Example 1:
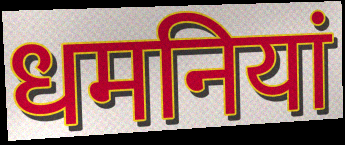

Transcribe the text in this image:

धमनियां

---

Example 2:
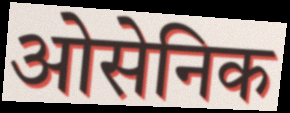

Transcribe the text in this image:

ओसेनिक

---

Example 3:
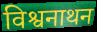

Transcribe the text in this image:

विश्वनाथन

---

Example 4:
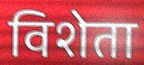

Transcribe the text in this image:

विशेता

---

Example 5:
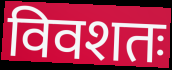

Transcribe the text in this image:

विवशतः